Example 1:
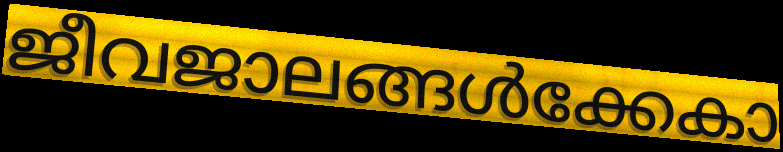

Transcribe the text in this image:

ജീവജാലങ്ങൾക്കേകാ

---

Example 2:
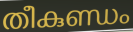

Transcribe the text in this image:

തീകുണ്ഡം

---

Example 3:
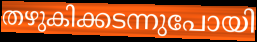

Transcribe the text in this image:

തഴുകിക്കടന്നുപോയി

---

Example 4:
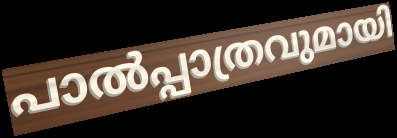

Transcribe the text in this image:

പാൽപ്പാത്രവുമായി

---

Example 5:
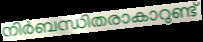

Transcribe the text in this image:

നിർബന്ധിതരാകാറുണ്ട്